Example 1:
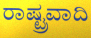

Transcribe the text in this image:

ರಾಷ್ಟ್ರವಾದಿ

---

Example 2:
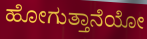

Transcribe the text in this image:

ಹೋಗುತ್ತಾನೆಯೋ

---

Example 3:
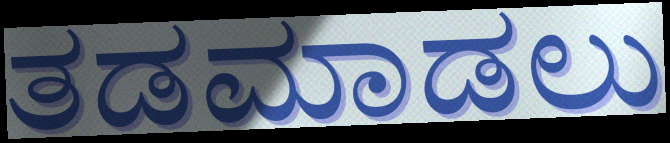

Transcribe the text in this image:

ತಡಮಾಡಲು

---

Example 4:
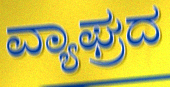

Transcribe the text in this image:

ವ್ಯಾಘ್ರದ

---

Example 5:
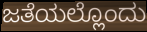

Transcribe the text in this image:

ಜತೆಯಲ್ಲೊಂದು